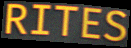
RITES